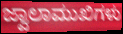
ಜ್ವಾಲಾಮುಖಿಗಳು